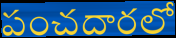
పంచదారలో